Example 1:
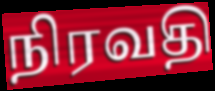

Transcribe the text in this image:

நிரவதி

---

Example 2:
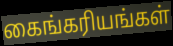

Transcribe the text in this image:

கைங்கரியங்கள்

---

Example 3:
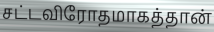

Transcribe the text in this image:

சட்டவிரோதமாகத்தான்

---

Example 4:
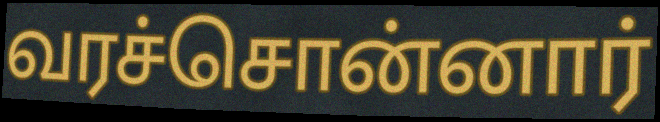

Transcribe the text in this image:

வரச்சொன்னார்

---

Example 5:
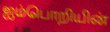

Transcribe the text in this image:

ஐம்பொறியின்